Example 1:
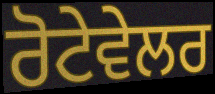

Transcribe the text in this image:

ਰੋਟੇਵੇਲਰ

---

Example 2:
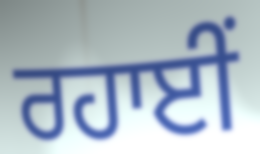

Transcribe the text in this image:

ਰਹਾਈਂ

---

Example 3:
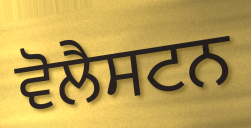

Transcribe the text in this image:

ਵੋਲੈਸਟਨ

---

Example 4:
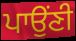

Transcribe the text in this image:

ਪਾਉਂਣੀ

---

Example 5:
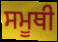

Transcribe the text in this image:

ਸਮੂਥੀ